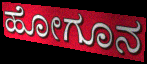
ಹೋಗೂನ